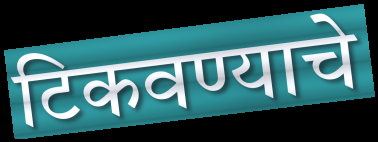
टिकवण्याचे